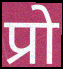
प्रो